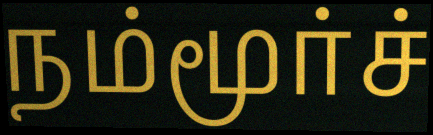
நம்மூர்ச்